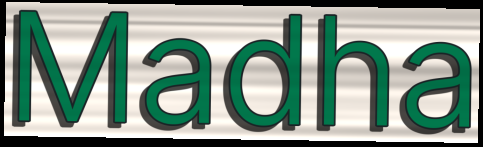
Madha